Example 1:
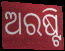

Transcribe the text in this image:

ଅରଷ୍ଟି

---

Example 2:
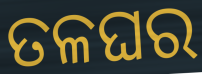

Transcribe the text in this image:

ତଳଘର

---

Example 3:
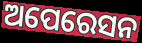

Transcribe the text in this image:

ଅପେରେସନ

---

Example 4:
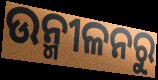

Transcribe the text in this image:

ଉନ୍ମୀଳନରୁ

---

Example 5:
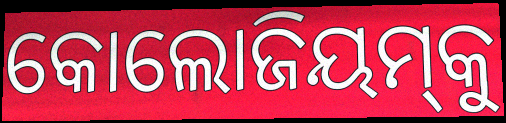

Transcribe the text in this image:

କୋଲୋଜିୟମ୍‍କୁ